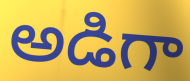
అడిగా